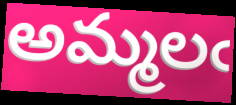
అమ్మలఁ